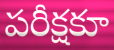
పరీక్షకూ